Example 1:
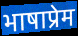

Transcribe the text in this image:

भाषाप्रेम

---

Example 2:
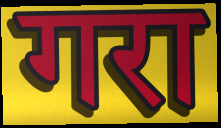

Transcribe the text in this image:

गरा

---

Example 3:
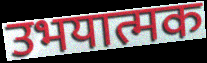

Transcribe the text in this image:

उभयात्मक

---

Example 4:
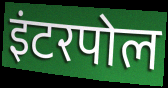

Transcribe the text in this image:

इंटरपोल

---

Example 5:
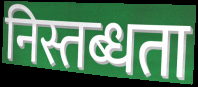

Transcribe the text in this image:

निस्तब्धता